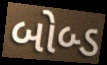
બોબ્ડ